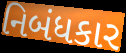
નિબંધકાર